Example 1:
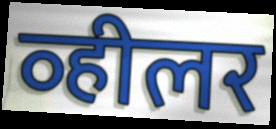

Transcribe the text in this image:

व्हीलर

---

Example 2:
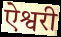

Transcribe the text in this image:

ऐश्वरी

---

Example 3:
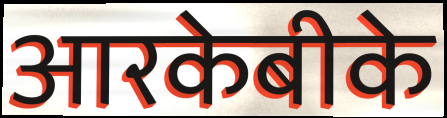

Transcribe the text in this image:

आरकेबीके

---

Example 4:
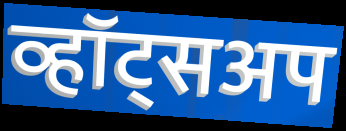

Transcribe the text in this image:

व्हॉट्सअप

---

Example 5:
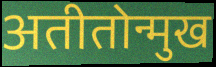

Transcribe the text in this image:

अतीतोन्मुख